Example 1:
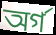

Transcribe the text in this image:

অৰ্গ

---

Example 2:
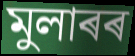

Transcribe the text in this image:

মুলাৰৰ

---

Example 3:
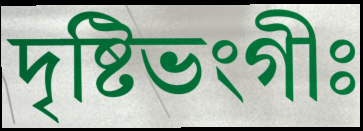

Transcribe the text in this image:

দৃষ্টিভংগীঃ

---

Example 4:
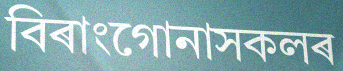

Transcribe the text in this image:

বিৰাংগোনাসকলৰ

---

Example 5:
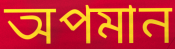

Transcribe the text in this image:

অপমান